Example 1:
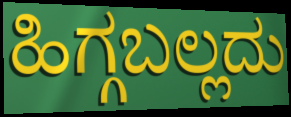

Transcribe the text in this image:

ಹಿಗ್ಗಬಲ್ಲದು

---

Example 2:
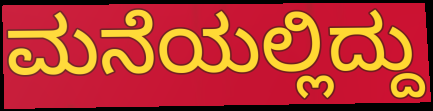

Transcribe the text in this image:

ಮನೆಯಲ್ಲಿದ್ದು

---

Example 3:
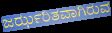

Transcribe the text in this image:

ಜರ್ಝರಿತವಾಗಿರುವ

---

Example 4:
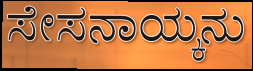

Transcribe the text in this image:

ಸೇಸನಾಯ್ಕನು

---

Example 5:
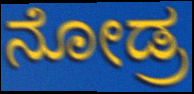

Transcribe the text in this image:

ನೋಡ್ರ